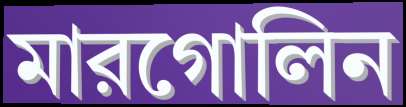
মারগোলিন